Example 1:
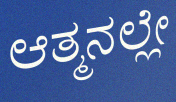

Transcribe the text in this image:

ಆತ್ಮನಲ್ಲೇ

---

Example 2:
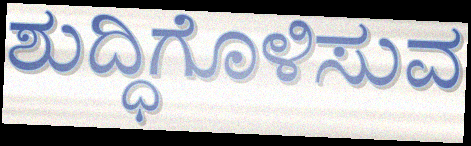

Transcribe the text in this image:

ಶುದ್ಧಿಗೊಳಿಸುವ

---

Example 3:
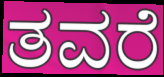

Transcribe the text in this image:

ತವರೆ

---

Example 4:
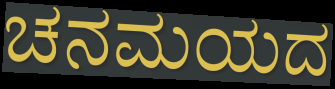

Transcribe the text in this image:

ಚನಮಯದ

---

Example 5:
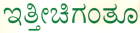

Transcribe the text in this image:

ಇತ್ತೀಚಿಗಂತೂ